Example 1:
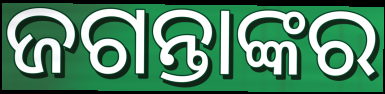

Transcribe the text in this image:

ଜଗନ୍ତାଙ୍କର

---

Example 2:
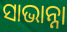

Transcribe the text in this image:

ସାଭାନ୍ନା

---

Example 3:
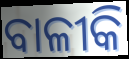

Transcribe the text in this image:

ବାଳୀକି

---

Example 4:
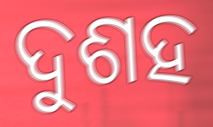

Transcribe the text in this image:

ଦୁଶହ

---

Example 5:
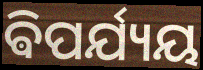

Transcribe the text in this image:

ଵିପର୍ଯ୍ୟୟ